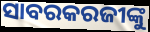
ସାବରକରଜୀଙ୍କୁ